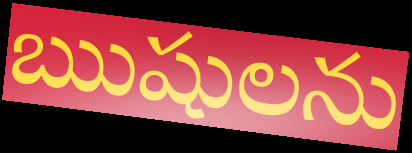
ఋషులను